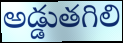
అడ్డుతగిలి